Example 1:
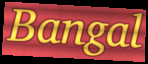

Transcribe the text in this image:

Bangal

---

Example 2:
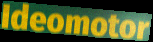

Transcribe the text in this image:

Ideomotor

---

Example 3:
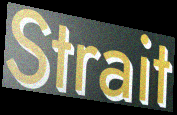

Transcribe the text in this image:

Strait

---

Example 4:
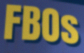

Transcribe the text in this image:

FBOs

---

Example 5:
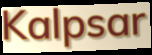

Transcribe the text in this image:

Kalpsar